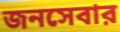
জনসেবার